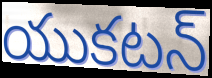
యుకటన్